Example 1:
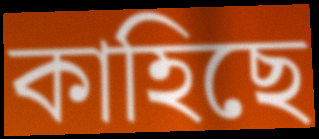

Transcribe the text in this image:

কাহিছে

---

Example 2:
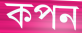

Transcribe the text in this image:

কপন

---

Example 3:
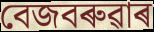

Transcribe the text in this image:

বেজবৰুৱাৰ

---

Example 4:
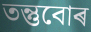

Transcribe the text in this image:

তন্তুবোৰ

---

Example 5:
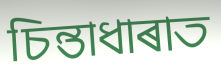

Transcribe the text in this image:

চিন্তাধাৰাত